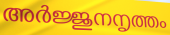
അർജ്ജുനനൃത്തം